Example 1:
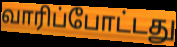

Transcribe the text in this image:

வாரிப்போட்டது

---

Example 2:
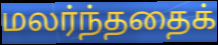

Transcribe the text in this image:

மலர்ந்ததைக்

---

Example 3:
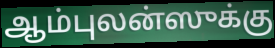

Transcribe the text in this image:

ஆம்புலன்ஸுக்கு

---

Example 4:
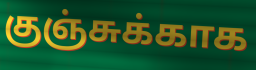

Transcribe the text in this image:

குஞ்சுக்காக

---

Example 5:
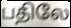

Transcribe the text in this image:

பதிலே